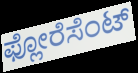
ಫ್ಲೋರೆಸೆಂಟ್